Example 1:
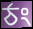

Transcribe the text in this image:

ঠং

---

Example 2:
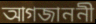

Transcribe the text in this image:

আগজাননী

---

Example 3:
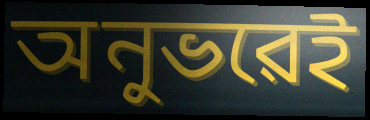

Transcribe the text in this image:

অনুভৱেই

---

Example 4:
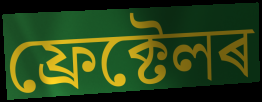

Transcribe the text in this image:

ফ্ৰেক্টেলৰ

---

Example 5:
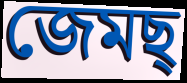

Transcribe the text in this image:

জেমছ্